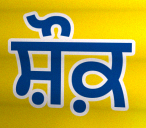
ਸ਼ੌਕ਼